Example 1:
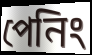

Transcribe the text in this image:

পেনিং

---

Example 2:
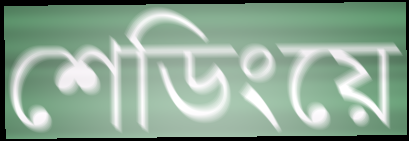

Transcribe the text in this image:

শেডিংয়ে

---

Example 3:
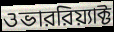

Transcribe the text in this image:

ওভাররিয়্যাক্ট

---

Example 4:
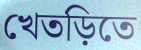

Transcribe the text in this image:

খেতড়িতে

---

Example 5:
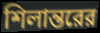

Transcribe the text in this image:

শিলান্তরের